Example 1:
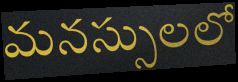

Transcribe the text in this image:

మనస్సులలో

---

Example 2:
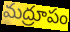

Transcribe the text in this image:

మద్రూపం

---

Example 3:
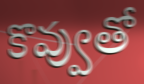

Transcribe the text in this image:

కొవ్వుతో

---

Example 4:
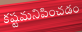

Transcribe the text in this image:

కష్టమనిపించడం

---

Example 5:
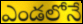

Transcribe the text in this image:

ఎండలోనే